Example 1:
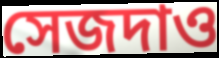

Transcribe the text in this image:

সেজদাও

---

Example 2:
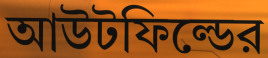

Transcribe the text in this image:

আউটফিল্ডের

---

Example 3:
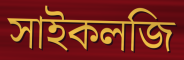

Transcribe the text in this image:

সাইকলজি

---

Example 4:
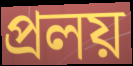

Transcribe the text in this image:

প্রলয়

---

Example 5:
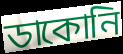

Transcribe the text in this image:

ডাকোনি